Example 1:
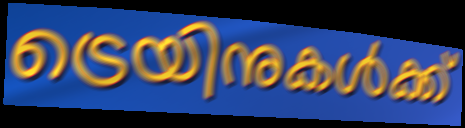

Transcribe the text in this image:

ട്രെയിനുകൾക്ക്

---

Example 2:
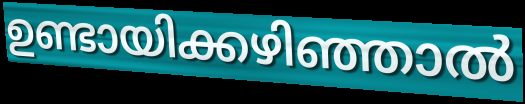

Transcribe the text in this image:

ഉണ്ടായിക്കഴിഞ്ഞാൽ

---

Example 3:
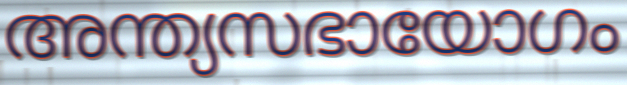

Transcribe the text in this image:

അന്ത്യസഭായോഗം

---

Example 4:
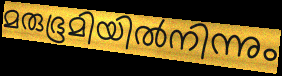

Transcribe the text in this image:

മരുഭൂമിയിൽനിന്നും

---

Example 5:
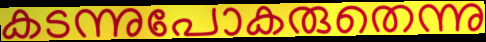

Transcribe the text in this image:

കടന്നുപോകരുതെന്നു